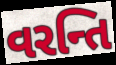
વરન્તિ